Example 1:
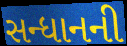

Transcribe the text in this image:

સન્ધાનની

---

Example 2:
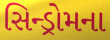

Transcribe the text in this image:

સિન્ડ્રોમના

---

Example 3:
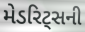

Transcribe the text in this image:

મેડરિટ્સની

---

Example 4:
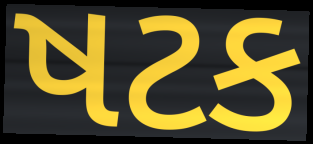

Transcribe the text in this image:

ષટક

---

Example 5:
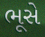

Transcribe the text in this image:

ભૂસે